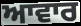
ਆਵਾਰ